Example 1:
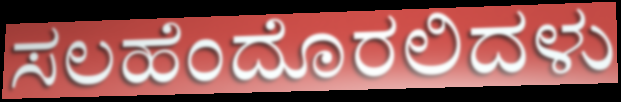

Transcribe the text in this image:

ಸಲಹೆಂದೊರಲಿದಳು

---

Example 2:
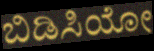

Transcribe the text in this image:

ಬಿಡಿಸಿಯೋ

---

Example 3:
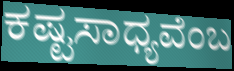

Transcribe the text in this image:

ಕಷ್ಟಸಾಧ್ಯವೆಂಬ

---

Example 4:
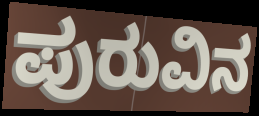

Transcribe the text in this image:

ಪುರುವಿನ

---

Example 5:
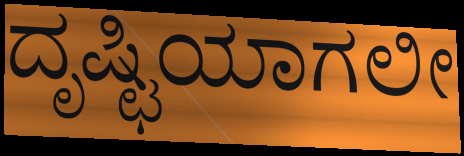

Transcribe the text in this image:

ದೃಷ್ಟಿಯಾಗಲೀ